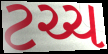
ટચ્ચ